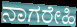
ನಾಗರೇಹಿ